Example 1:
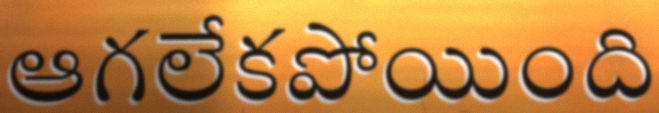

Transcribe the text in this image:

ఆగలేకపోయింది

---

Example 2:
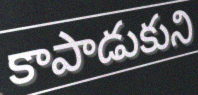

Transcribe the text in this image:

కాపాడుకుని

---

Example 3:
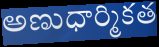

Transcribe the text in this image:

అణుధార్మికత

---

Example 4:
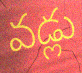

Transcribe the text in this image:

వడ్లు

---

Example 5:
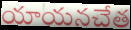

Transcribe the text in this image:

యాయనచేత